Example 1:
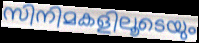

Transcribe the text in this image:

സിനിമകളിലൂടെയും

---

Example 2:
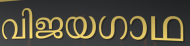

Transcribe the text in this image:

വിജയഗാഥ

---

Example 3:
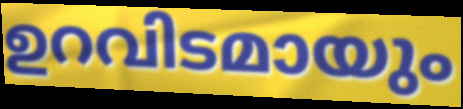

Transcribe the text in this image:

ഉറവിടമായും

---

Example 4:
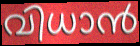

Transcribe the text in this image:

വിധാൻ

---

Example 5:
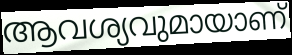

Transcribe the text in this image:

ആവശ്യവുമായാണ്